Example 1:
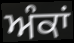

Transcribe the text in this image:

ਅੰਕਾਂ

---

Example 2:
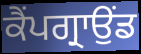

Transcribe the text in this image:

ਕੈਂਪਗ੍ਰਾਉਂਡ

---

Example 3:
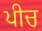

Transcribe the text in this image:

ਪੀਚ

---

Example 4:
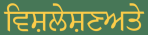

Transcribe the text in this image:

ਵਿਸ਼ਲੇਸ਼ਣਅਤੇ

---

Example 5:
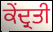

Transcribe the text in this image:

ਕੇਂਦ੍ਰਤੀ